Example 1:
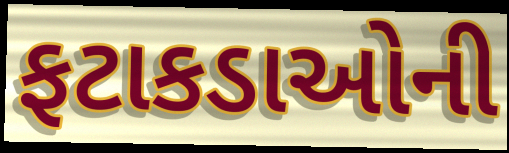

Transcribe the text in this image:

ફટાકડાઓની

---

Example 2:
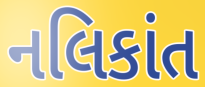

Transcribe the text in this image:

નલિકાંત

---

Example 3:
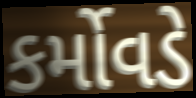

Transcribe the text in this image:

કર્મોવડે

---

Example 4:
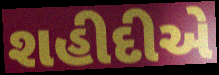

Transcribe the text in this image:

શહીદીએ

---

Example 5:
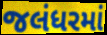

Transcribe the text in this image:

જલંધરમાં